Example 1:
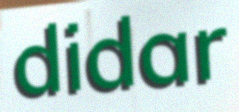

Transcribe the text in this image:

didar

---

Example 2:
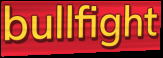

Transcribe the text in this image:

bullfight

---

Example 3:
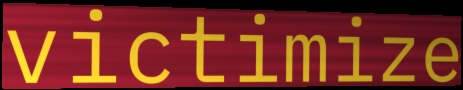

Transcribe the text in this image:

victimize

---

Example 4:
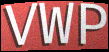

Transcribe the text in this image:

VWP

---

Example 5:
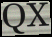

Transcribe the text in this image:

QX